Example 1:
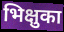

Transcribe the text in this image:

भिक्षुका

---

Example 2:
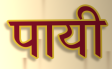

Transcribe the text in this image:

पायी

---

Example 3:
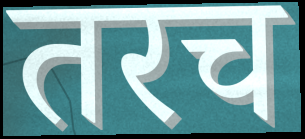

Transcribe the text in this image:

तरच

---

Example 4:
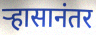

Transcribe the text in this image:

ऱ्हासानंतर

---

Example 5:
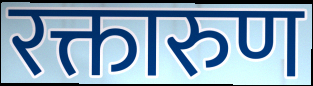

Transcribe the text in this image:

रक्तारुण